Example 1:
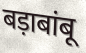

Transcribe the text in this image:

बड़ाबांबू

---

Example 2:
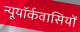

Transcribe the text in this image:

न्यूयॉर्कवासियों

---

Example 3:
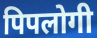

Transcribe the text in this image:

पिपलोगी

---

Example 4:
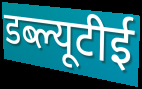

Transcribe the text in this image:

डब्ल्यूटीई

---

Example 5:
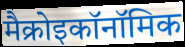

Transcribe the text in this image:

मैक्रोइकॉनॉमिक